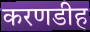
करणडीह